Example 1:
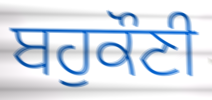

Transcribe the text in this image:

ਬਹੁਕੌਣੀ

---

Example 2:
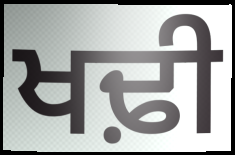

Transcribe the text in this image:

ਖਢ਼ੀ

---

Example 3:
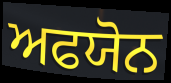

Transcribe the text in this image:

ਅਫਯੋਨ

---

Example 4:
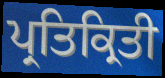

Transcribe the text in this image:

ਪ੍ਰਤਿਕ੍ਰਿਤੀ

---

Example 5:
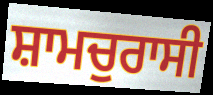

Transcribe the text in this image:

ਸ਼ਾਮਚੁਰਾਸੀ